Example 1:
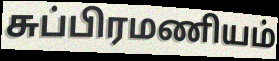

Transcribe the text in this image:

சுப்பிரமணியம்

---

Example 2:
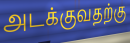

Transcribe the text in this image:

அடக்குவதற்கு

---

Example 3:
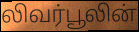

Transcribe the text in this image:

லிவர்பூலின்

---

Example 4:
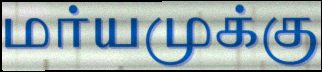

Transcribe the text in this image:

மர்யமுக்கு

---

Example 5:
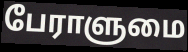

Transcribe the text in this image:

பேராளுமை